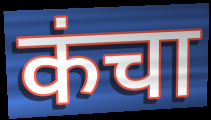
कंचा